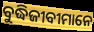
ବୁଦ୍ଧିଜୀବୀମାନେ